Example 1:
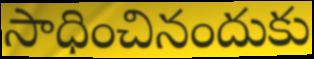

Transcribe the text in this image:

సాధించినందుకు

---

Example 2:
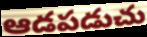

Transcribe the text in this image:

ఆడపడుచు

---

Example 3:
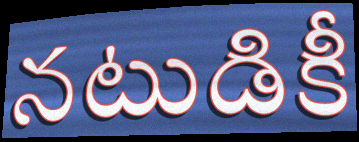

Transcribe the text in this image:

నటుడికీ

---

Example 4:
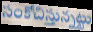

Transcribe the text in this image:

సంకోచిస్తున్నట్టు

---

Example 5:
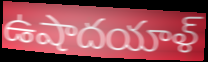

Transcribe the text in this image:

ఉషాదయాళ్